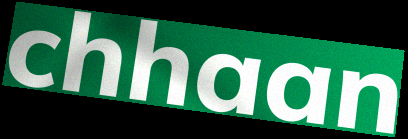
chhaan